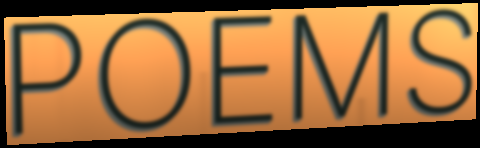
POEMS